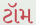
ટૉમ